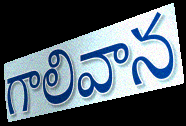
గాలివాన